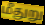
மீதுறு